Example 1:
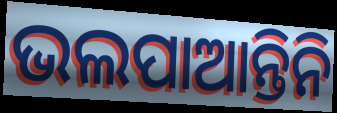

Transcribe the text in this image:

ଭଲପାଆନ୍ତିନି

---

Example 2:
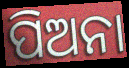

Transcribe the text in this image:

ପିଅନା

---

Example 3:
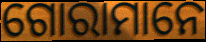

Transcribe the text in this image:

ଗୋରାମାନେ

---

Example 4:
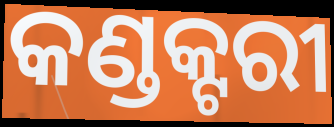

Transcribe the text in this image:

କଣ୍ଡକ୍ଟରୀ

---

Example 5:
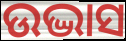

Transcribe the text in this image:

ଉଦ୍ଭାସ